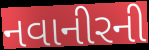
નવાનીરની